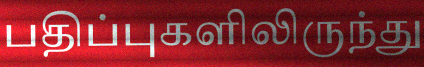
பதிப்புகளிலிருந்து